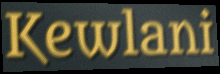
Kewlani